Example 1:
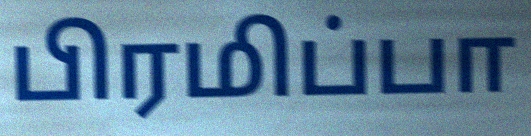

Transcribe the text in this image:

பிரமிப்பா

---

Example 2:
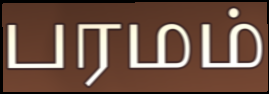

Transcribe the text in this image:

பரமம்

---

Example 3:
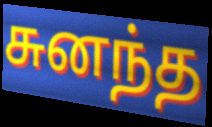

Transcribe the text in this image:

சுனந்த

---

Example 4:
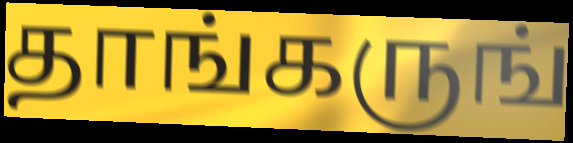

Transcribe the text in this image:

தாங்கருங்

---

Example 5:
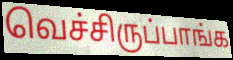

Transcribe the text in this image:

வெச்சிருப்பாங்க